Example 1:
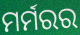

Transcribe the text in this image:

ମର୍ମରର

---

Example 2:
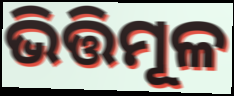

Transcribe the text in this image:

ଭିତ୍ତିମୂଳ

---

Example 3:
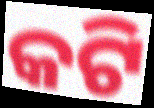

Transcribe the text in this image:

କଟି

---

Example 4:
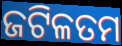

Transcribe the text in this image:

ଜଟିଳତମ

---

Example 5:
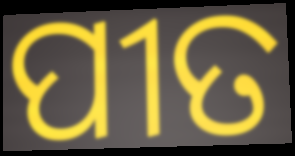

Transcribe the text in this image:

ପୀତ